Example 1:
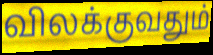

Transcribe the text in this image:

விலக்குவதும்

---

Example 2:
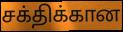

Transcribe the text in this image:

சக்திக்கான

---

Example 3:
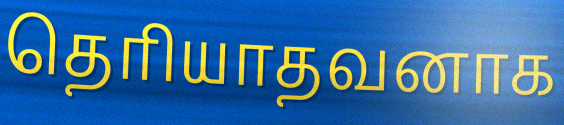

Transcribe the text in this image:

தெரியாதவனாக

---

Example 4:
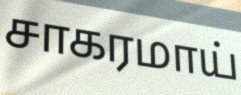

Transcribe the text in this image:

சாகரமாய்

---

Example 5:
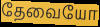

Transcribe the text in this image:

தேவையோ